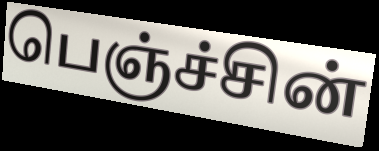
பெஞ்ச்சின்